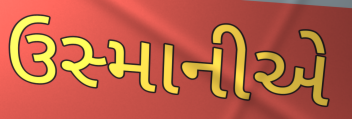
ઉસ્માનીએ